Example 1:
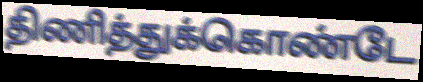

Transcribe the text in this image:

திணித்துக்கொண்டே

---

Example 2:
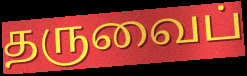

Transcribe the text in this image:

தருவைப்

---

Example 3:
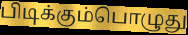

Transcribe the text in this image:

பிடிக்கும்பொழுது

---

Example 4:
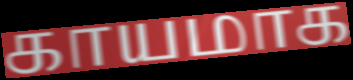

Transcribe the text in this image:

காயமாக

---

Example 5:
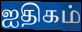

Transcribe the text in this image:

ஐதிகம்